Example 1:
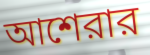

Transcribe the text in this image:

আশেরার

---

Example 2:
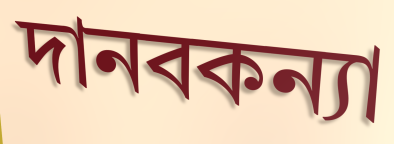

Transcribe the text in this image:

দানবকন্যা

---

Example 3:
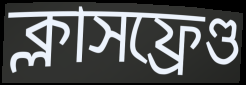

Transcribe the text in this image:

ক্লাসফ্রেণ্ড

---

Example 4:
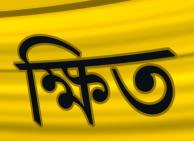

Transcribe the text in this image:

ক্ষিত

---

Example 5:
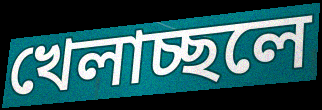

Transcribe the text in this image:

খেলাচ্ছলে